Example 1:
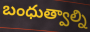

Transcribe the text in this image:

బంధుత్వాల్ని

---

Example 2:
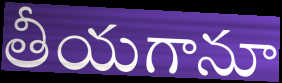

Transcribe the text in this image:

తీయగానూ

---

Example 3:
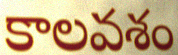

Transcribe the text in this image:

కాలవశం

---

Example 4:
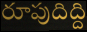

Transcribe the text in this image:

రూపుదిద్ది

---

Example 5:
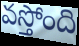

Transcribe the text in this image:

వస్తోంది